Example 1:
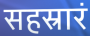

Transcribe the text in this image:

सहस्रारं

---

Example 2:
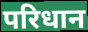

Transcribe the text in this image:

परिधान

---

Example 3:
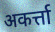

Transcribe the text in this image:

अकर्त्ता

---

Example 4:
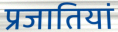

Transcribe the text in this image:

प्रजातियां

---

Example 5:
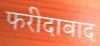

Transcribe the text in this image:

फरीदाबाद